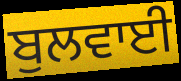
ਬੁਲਵਾਈ